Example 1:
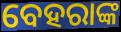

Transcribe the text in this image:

ବେହରାଙ୍କ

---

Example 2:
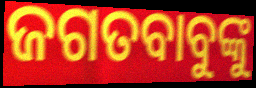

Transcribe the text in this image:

ଜଗତବାବୁଙ୍କୁ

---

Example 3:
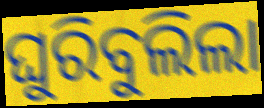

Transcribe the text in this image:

ଘୁରିବୁଲିଲା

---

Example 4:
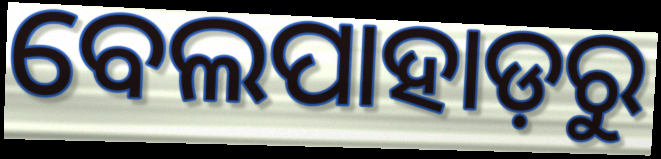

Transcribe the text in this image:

ବେଲପାହାଡ଼ରୁ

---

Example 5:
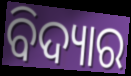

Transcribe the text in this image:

ବିଦ୍ୟାର